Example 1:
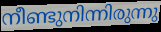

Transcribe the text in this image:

നീണ്ടുനിന്നിരുന്നു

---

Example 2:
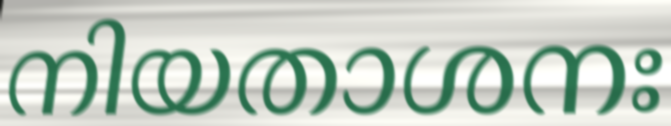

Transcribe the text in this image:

നിയതാശനഃ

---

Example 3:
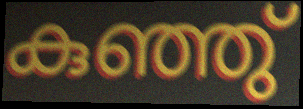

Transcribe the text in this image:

കുഞ്ഞു്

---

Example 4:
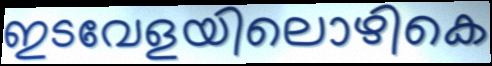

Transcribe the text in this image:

ഇടവേളയിലൊഴികെ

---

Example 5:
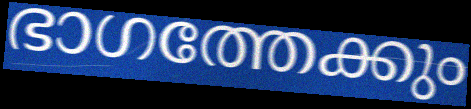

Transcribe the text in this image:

ഭാഗത്തേക്കും